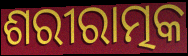
ଶରୀରାତ୍ମକ